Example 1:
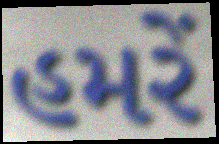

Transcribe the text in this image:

હમરેં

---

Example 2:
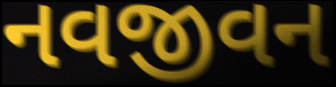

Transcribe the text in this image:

નવજીવન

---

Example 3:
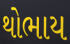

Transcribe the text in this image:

થોભાય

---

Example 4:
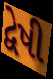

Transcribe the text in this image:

દ્વેષી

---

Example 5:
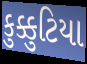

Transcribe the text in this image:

કુક્કુટિયા